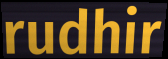
rudhir